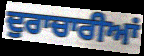
ਦੁਰਾਚਾਰੀਆਂ